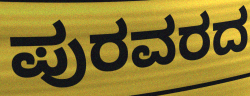
ಪುರವರದ